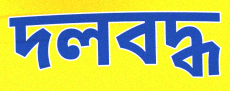
দলবদ্ধ